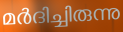
മർദിച്ചിരുന്നു